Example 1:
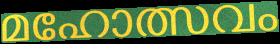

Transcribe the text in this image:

മഹോത്സവം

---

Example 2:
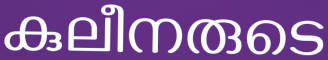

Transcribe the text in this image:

കുലീനരുടെ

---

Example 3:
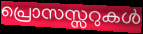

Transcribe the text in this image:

പ്രൊസസ്സറുകൾ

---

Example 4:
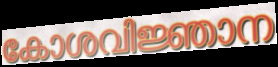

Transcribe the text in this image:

കോശവിജ്ഞാന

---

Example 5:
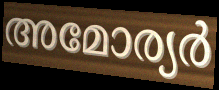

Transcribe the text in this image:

അമോര്യർ